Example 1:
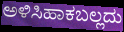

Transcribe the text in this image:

ಅಳಿಸಿಹಾಕಬಲ್ಲದು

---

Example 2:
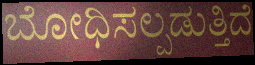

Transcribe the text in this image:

ಬೋಧಿಸಲ್ಪಡುತ್ತಿದೆ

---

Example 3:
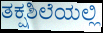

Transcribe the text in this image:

ತಕ್ಷಶಿಲೆಯಲ್ಲಿ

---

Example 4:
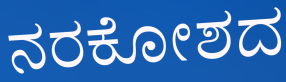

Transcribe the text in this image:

ನರಕೋಶದ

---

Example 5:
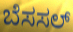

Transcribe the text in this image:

ಬೆಸಸಲ್